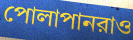
পোলাপানরাও